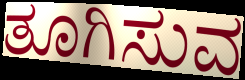
ತೂಗಿಸುವ